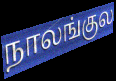
நாலங்குல